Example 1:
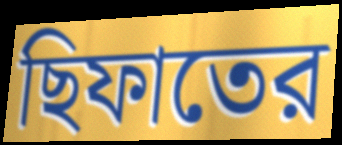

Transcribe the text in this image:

ছিফাতের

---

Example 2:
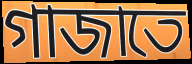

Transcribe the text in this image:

গাজাতে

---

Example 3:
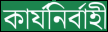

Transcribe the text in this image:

কার্যনির্বাহী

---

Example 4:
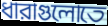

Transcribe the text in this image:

ধারাগুলোতে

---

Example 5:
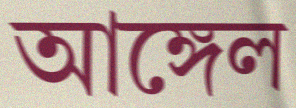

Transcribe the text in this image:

আঙ্গেল